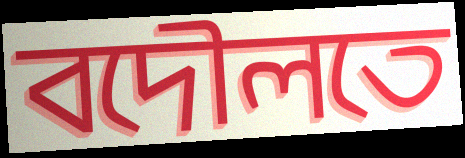
বদৌলতে